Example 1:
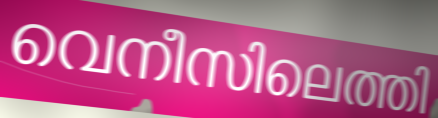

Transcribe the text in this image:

വെനീസിലെത്തി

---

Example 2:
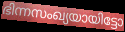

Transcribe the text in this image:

ഭിന്നസംഖ്യയായിട്ടോ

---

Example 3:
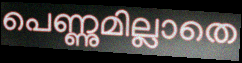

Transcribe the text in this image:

പെണ്ണുമില്ലാതെ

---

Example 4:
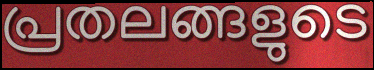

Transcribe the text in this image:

പ്രതലങ്ങളുടെ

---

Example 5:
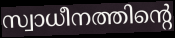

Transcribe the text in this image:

സ്വാധീനത്തിന്റെ